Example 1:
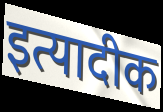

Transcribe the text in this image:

इत्यादीक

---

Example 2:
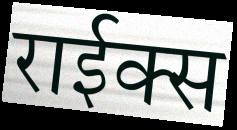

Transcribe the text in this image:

राईक्स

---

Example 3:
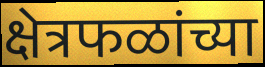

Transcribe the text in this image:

क्षेत्रफळांच्या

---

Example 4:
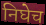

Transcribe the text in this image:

निघेच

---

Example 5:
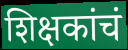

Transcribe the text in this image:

शिक्षकांचं